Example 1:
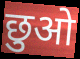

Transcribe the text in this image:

छुओ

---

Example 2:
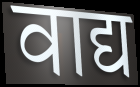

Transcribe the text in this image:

वाद्य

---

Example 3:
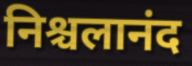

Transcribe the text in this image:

निश्चलानंद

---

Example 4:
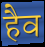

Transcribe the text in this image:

हैव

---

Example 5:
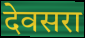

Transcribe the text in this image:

देवसरा